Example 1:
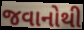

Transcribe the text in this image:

જવાનોથી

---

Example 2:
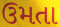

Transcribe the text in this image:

ઉમતા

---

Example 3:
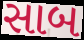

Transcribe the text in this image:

સાબ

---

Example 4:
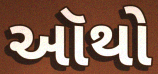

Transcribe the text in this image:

ઑથો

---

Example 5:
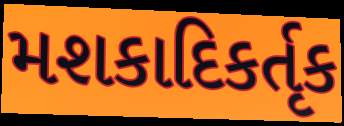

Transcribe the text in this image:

મશકાદિકર્તૃક